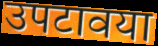
उपटावया